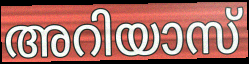
അറിയാസ്